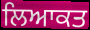
ਲਿਆਕਤ